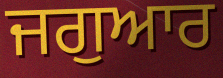
ਜਗੁਆਰ